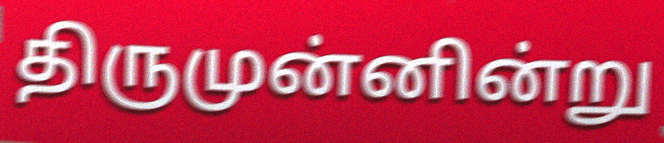
திருமுன்னின்று